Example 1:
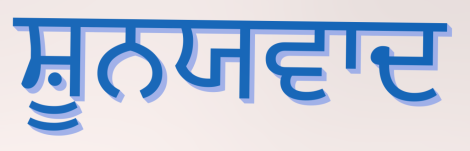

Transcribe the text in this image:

ਸ਼ੂਨਯਵਾਦ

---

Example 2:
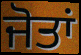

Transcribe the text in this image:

ਜੋਤਾਂ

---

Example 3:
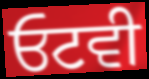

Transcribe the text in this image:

ਓਟਵੀ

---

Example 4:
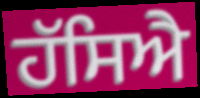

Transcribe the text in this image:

ਹੱਸਿਐ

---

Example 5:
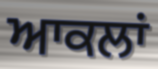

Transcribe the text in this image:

ਆਕਲਾਂ